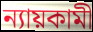
ন্যায়কামী